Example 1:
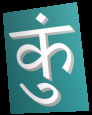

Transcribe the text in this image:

कुं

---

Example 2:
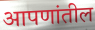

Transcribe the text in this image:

आपणांतील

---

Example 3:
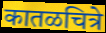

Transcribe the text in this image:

कातळचित्रे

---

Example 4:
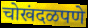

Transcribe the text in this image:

चोखंदळपणे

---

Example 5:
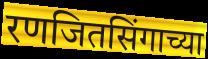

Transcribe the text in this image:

रणजितसिंगाच्या